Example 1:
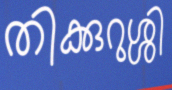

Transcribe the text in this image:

തിക്കുറുശ്ശി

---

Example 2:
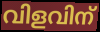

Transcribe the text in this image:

വിളവിന്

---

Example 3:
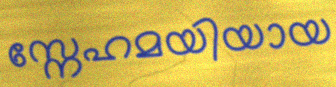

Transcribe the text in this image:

സ്നേഹമയിയായ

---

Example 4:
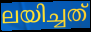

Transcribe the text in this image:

ലയിച്ചത്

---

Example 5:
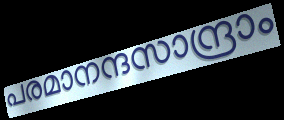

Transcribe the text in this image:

പരമാനന്ദസാന്ദ്രാം